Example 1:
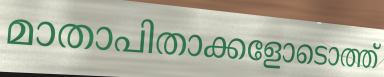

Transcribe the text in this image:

മാതാപിതാക്കളോടൊത്ത്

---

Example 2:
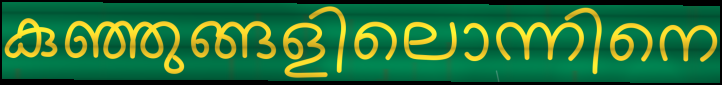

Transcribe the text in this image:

കുഞ്ഞുങ്ങളിലൊന്നിനെ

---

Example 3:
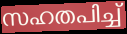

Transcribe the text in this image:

സഹതപിച്ച്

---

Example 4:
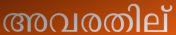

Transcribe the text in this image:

അവരതില്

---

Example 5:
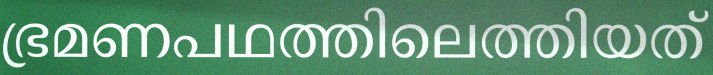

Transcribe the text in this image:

ഭ്രമണപഥത്തിലെത്തിയത്